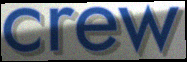
crew